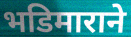
भडिमाराने